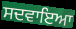
ਸਦਵਾਇਆ